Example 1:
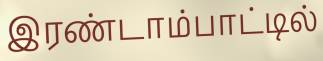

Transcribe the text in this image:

இரண்டாம்பாட்டில்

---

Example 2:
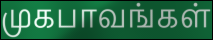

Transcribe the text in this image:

முகபாவங்கள்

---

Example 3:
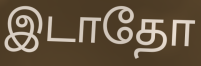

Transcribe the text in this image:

இடாதோ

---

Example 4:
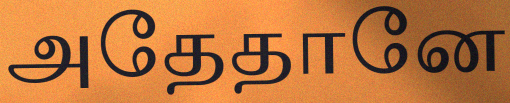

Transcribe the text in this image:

அதேதானே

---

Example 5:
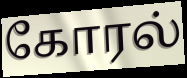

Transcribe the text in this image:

கோரல்